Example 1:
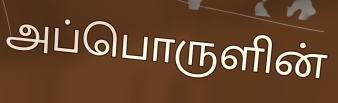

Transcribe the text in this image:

அப்பொருளின்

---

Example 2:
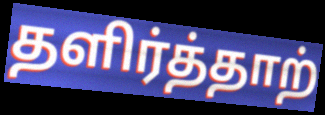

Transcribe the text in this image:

தளிர்த்தாற்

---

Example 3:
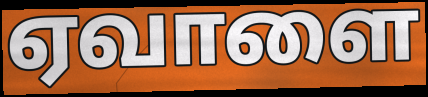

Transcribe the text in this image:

ஏவாளை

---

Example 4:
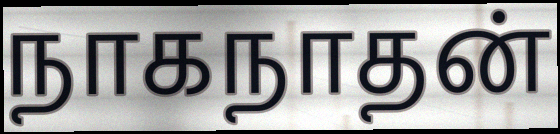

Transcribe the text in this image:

நாகநாதன்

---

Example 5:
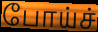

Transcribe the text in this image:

போய்ச்